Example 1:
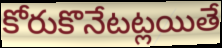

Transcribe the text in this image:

కోరుకొనేటట్లయితే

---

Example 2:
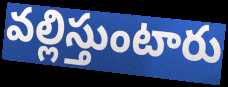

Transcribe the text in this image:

వల్లిస్తుంటారు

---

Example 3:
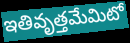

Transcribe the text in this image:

ఇతివృత్తమేమిటో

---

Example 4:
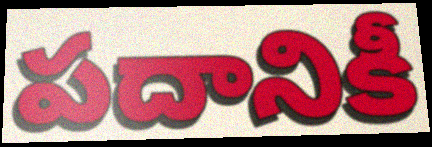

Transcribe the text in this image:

పదానికీ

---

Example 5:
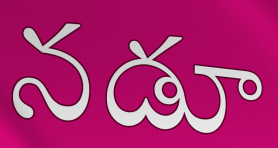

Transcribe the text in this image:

నడూ